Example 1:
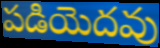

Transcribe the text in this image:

పడియెదవు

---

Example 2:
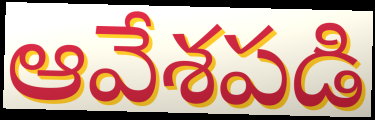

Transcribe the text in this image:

ఆవేశపడి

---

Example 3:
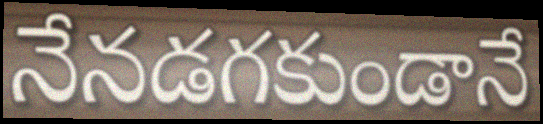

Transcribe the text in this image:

నేనడగకుండానే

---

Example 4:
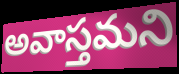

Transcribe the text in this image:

అవాస్తమని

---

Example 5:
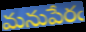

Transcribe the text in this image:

మనుపేరఁ